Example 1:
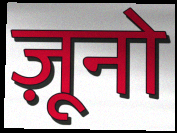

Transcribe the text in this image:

ज़ूनो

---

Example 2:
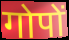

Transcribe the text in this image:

गोपों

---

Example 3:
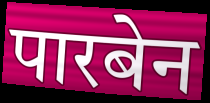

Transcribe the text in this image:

पारबेन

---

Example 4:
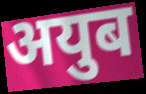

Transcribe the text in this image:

अयुब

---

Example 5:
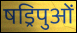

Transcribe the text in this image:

षड्रिपुओं